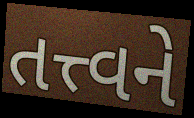
તત્ત્વને